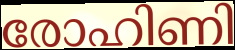
രോഹിണി